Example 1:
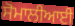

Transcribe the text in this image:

ਸੋਮਾਲੀਆਈ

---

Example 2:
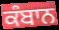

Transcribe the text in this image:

ਕੰਬਾਨ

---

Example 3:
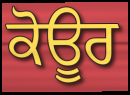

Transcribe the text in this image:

ਕੋਊਰ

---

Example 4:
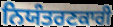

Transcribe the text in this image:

ਨਿਯੰਤਰਣਕਾਰੀ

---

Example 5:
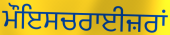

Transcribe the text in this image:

ਮੌਇਸਚਰਾਈਜ਼ਰਾਂ